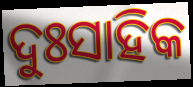
ଦୁଃସାହିକ